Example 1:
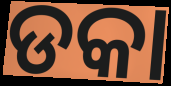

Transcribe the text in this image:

ଡକା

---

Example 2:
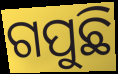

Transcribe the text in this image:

ଗପୁଛି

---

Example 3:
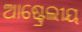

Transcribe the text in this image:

ଆଷ୍ଟ୍ରେଲୀୟ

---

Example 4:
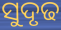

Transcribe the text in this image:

ସୁଦୃଢ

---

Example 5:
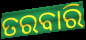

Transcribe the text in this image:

ତରବାରି